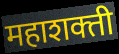
महाशक्‍ती